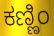
ಕಣ್ಣಿಂ